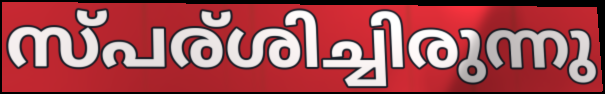
സ്പര്ശിച്ചിരുന്നു